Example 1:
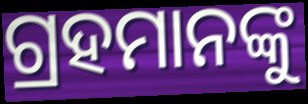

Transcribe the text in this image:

ଗ୍ରହମାନଙ୍କୁ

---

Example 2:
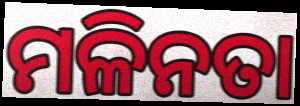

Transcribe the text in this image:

ମଳିନତା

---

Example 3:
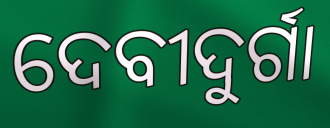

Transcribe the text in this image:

ଦେବୀଦୁର୍ଗା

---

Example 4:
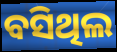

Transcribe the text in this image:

ବସିଥିଲ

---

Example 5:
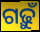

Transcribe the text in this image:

ଗଢ଼ୁଁ